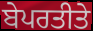
ਬੇਪਰਤੀਤੇ